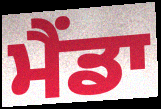
ਮੈਂਡਾ